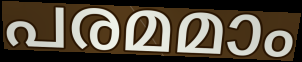
പരമമാം